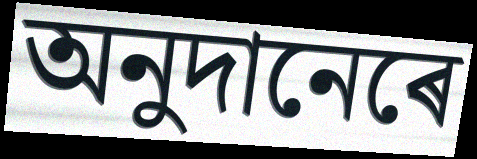
অনুদানেৰে